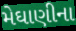
મેઘાણીના